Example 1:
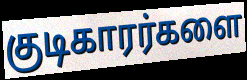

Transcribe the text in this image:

குடிகாரர்களை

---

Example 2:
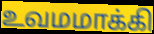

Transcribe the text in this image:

உவமமாக்கி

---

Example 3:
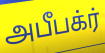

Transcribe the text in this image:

அபீபக்ர்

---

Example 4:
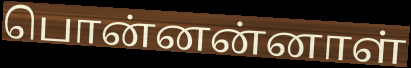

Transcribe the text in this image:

பொன்னன்னாள்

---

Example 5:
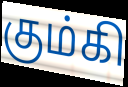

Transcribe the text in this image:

கும்கி